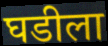
घडीला